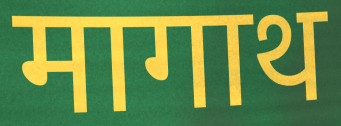
मागाथ